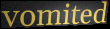
vomited